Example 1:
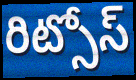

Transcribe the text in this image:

రిట్సోస్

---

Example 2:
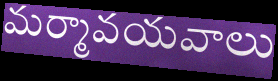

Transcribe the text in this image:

మర్మావయవాలు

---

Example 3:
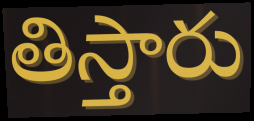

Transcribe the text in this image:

తిస్తారు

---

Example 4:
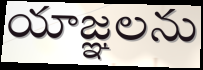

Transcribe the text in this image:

యాజ్ఞలను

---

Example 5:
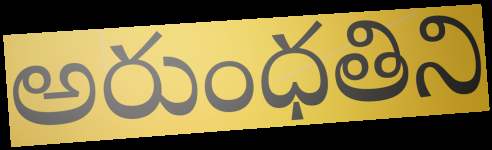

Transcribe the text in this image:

అరుంధతిని